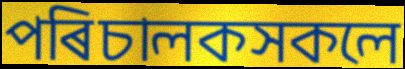
পৰিচালকসকলে